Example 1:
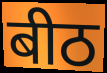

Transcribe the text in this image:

बीठ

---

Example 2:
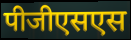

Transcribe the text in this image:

पीजीएसएस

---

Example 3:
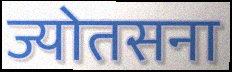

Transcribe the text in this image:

ज्योतसना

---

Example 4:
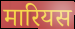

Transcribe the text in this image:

मारियस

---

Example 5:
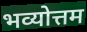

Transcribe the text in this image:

भव्योत्तम